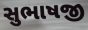
સુભાષજી